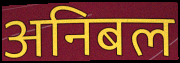
अनिबल